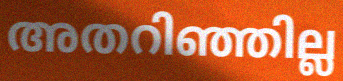
അതറിഞ്ഞില്ല